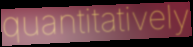
quantitatively